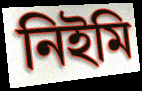
নিইমি